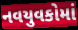
નવયુવકોમાં